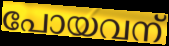
പോയവന്